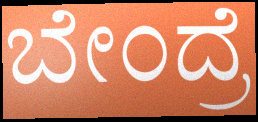
ಬೇಂದ್ರೆ